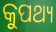
କୁପଥ୍ୟ